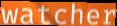
watcher